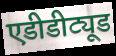
एडीडीट्यूड